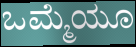
ಒಮ್ಮೆಯೂ